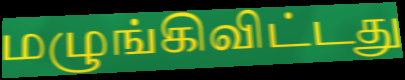
மழுங்கிவிட்டது